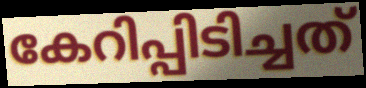
കേറിപ്പിടിച്ചത്